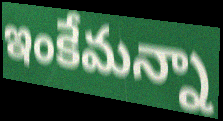
ఇంకేమన్నా